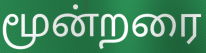
மூன்றரை